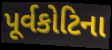
પૂર્વકોટિના